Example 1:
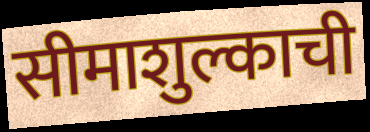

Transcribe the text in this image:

सीमाशुल्काची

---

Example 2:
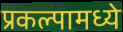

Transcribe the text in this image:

प्रकल्पामध्ये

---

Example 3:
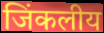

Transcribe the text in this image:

जिंकलीय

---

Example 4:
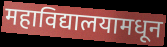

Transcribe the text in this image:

महाविद्यालयामधून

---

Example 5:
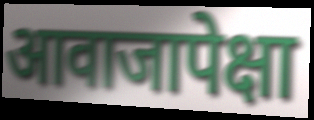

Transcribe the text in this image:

आवाजापेक्षा